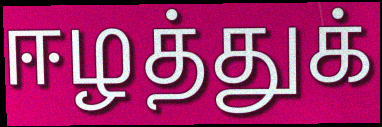
ஈழத்துக்